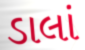
ડાલાં